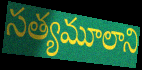
సత్యమూలాని